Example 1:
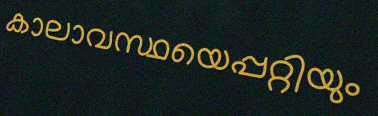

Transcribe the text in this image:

കാലാവസ്ഥയെപ്പറ്റിയും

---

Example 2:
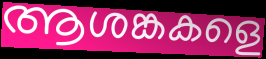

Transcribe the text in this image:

ആശങ്കകളെ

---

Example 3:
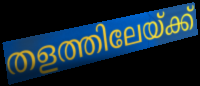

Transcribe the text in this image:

തളത്തിലേയ്ക്ക്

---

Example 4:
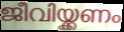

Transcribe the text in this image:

ജീവിയ്ക്കണം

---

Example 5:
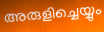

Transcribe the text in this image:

അരുളിച്ചെയ്യും